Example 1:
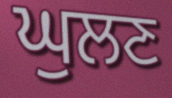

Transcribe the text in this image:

ਘੁਲਣ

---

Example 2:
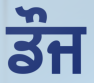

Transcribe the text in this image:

ਡੌਜ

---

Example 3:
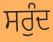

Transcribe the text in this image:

ਸਰੁੰਦ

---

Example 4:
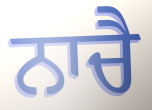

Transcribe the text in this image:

ਨਾਚੈ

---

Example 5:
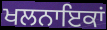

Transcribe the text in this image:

ਖਲਨਾਇਕਾਂ